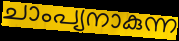
ചാംപ്യനാകുന്ന